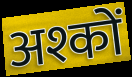
अश्कों